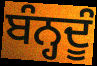
ਬੰਨ੍ਹਦੂੰ